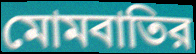
মোমবাতির